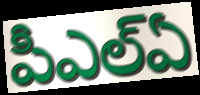
పీఎల్ఏ